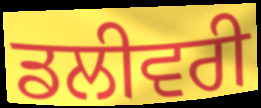
ਡਲੀਵਰੀ